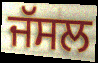
ਜੱਸਲ